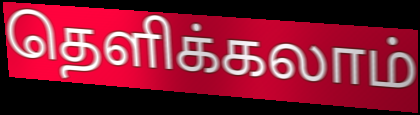
தெளிக்கலாம்